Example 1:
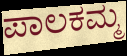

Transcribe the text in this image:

ಪಾಲಕಮ್ಮ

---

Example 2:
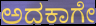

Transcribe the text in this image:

ಅದಕಾಗೇ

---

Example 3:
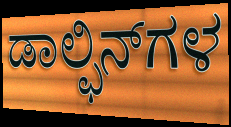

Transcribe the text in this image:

ಡಾಲ್ಫಿನ್‌ಗಳ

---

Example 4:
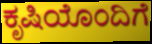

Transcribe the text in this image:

ಕೃಷಿಯೊಂದಿಗೆ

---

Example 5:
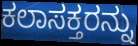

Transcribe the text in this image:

ಕಲಾಸಕ್ತರನ್ನು